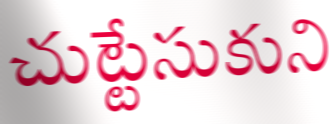
చుట్టేసుకుని